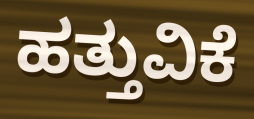
ಹತ್ತುವಿಕೆ